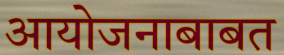
आयोजनाबाबत